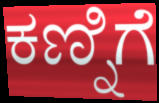
ಕಣ್ನಿಗೆ